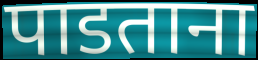
पाडताना